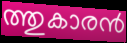
ത്തുകാരൻ